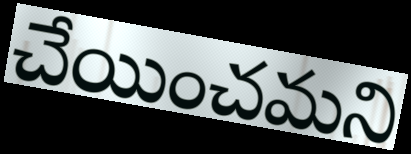
చేయించమని